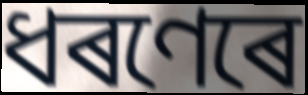
ধৰণেৰে